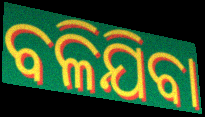
ବଳିଯିବା